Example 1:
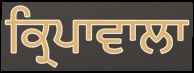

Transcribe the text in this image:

ਕ੍ਰਿਪਾਵਾਲਾ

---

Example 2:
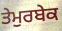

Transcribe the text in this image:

ਤੇਮੁਰਬੇਕ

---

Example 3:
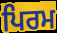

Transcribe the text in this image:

ਪਿਰਮ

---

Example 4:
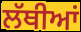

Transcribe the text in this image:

ਲੱਥੀਆਂ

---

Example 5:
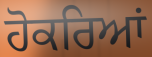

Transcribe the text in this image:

ਹੋਕਰਿਆਂ